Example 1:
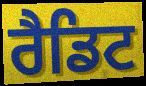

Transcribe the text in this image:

ਰੈਡਿਟ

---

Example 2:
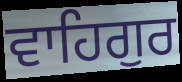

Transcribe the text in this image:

ਵਾਹਿਗੁਰ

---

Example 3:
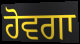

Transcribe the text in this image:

ਹੋਵਗਾ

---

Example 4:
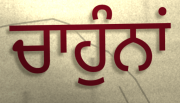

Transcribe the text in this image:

ਚਾਹੁੰਨਾਂ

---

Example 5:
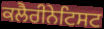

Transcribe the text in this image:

ਕਲੈਰੀਨੇਟਿਸਟ